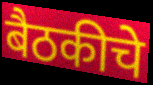
बैठकीचे